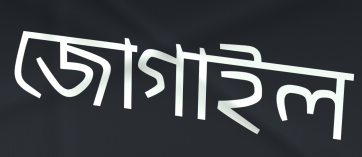
জোগাইল